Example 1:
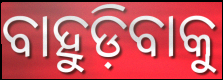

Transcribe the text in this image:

ବାହୁଡ଼ିବାକୁ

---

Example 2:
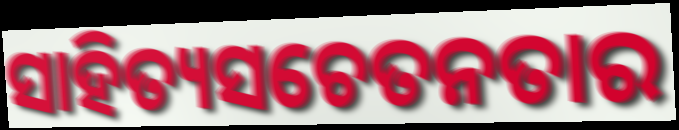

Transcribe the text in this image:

ସାହିତ୍ୟସଚେତନତାର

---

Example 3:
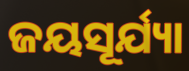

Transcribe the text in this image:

ଜୟସୂର୍ଯ୍ୟା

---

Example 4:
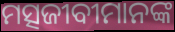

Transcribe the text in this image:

ମତ୍ସଜୀବୀମାନଙ୍କ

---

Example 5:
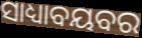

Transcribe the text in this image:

ସାଧ୍ୟାବୟବର